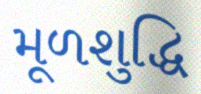
મૂળશુદ્ધિ